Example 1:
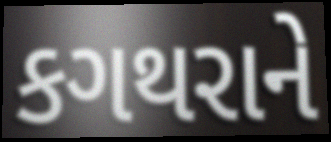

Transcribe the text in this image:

કગથરાને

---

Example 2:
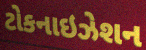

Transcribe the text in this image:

ટોકનાઇઝેશન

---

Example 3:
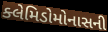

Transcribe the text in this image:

ક્લેમિડોમોનાસની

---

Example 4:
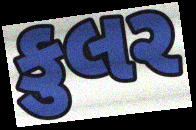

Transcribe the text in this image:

કુલર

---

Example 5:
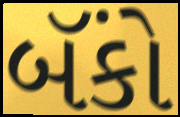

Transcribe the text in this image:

બૅંકો